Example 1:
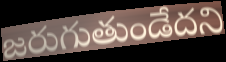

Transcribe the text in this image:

జరుగుతుండేదని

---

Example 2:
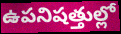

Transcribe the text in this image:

ఉపనిషత్తుల్లో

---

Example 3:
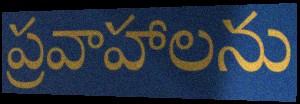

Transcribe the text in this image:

ప్రవాహాలను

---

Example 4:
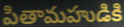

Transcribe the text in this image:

పితామహుడికి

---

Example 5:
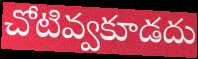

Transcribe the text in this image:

చోటివ్వకూడదు